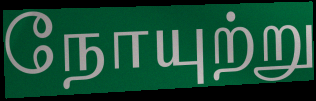
நோயுற்று